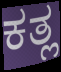
ಕತ್ಲ